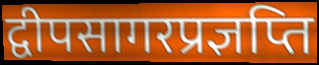
द्वीपसागरप्रज्ञप्ति